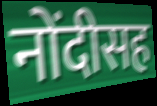
नोंदीसह